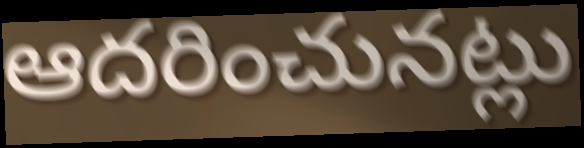
ఆదరించునట్లు